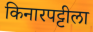
किनारपट्टीला